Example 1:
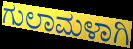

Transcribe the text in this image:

ಗುಲಾಮಳಾಗಿ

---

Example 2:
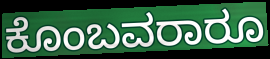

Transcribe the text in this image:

ಕೊಂಬವರಾರೂ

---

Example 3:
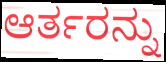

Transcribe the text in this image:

ಆರ್ತರನ್ನು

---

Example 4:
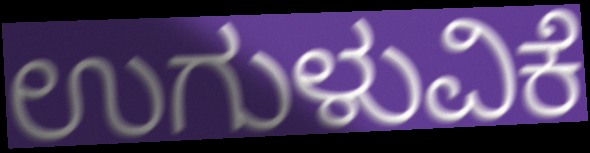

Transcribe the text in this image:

ಉಗುಳುವಿಕೆ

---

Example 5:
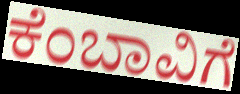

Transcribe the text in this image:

ಕೆಂಬಾವಿಗೆ